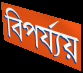
বিপৰ্য্যয়